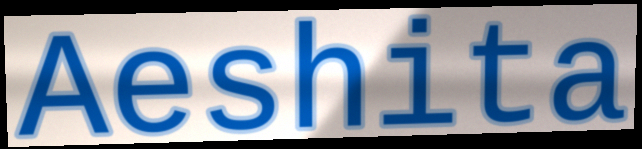
Aeshita